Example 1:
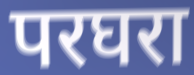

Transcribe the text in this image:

परघरा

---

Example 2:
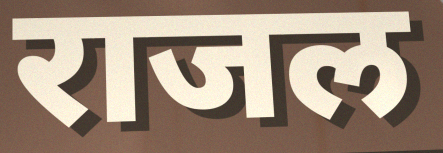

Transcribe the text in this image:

राजल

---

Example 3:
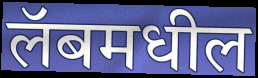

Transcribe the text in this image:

लॅबमधील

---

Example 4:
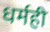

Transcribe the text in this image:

धर्मही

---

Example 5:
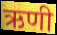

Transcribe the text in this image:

ऋणी